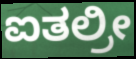
ಐತಲ್ರೀ